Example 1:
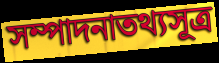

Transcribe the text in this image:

সম্পাদনাতথ্যসূত্র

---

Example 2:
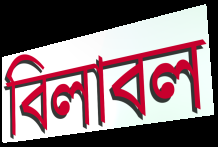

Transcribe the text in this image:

বিলাবল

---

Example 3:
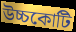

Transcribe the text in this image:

উচ্চকোটি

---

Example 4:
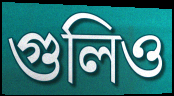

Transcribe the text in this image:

গুলিও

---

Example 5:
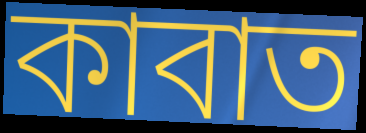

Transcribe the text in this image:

কাবাত